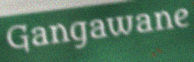
Gangawane